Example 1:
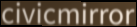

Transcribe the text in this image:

civicmirror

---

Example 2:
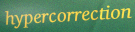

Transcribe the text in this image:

hypercorrection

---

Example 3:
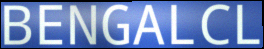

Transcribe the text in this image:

BENGALCL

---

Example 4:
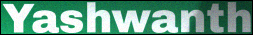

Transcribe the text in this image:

Yashwanth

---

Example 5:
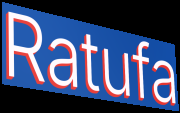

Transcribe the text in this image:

Ratufa